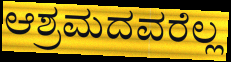
ಆಶ್ರಮದವರೆಲ್ಲ